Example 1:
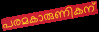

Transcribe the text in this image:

പരമകാരുണികന്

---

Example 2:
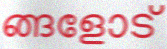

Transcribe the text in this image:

ങ്ങളോട്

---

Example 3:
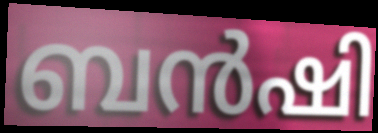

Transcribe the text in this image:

ബൻഷി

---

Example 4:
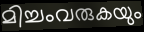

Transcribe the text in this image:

മിച്ചംവരുകയും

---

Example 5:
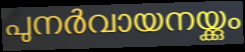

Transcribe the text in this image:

പുനർവായനയ്ക്കും